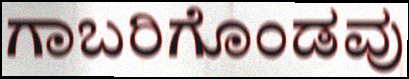
ಗಾಬರಿಗೊಂಡವು